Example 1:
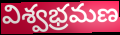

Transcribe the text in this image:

విశ్వభ్రమణ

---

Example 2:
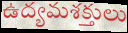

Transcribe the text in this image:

ఉద్యమశక్తులు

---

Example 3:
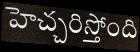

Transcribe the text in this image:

హెచ్చరిస్తోంది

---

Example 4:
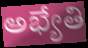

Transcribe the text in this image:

అభ్యేతి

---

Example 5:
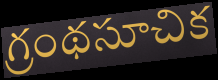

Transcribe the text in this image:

గ్రంథసూచిక